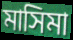
মাসিমা